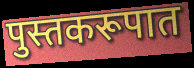
पुस्तकरूपात